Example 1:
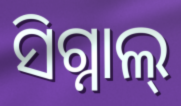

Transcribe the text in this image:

ସିଗ୍ନାଲ୍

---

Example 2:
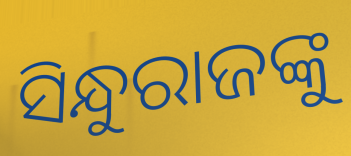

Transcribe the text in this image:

ସିନ୍ଧୁରାଜଙ୍କୁ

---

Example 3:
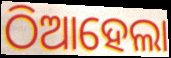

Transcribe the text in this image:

ଠିଆହେଲା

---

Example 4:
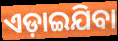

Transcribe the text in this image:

ଏଡ଼ାଇଯିବା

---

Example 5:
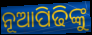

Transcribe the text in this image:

ନୂଆପିଢିଙ୍କୁ